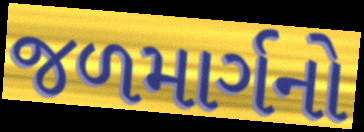
જળમાર્ગનો